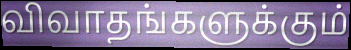
விவாதங்களுக்கும்